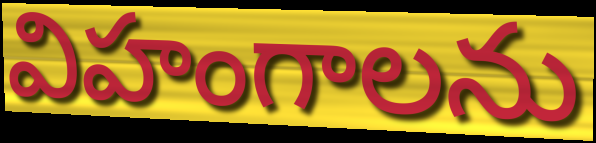
విహంగాలను